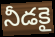
నీడకై